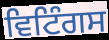
ਵਿਟਿੰਗਸ